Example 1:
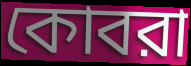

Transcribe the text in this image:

কোবরা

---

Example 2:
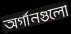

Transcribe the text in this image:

অর্গানগুলো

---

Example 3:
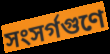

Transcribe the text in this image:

সংসর্গগুণে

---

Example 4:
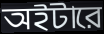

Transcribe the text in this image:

অইটারে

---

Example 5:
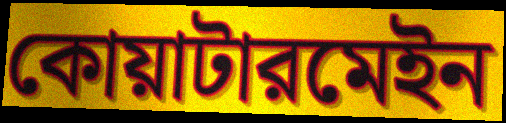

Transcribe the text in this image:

কোয়াটারমেইন